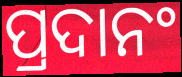
ପ୍ରଦାନଂ